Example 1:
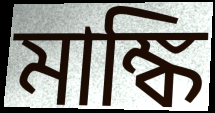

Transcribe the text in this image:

মাঙ্কি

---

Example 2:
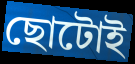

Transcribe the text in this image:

ছোটোই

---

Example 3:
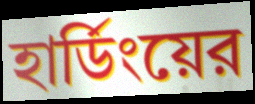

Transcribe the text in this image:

হার্ডিংয়ের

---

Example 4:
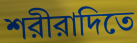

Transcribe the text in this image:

শরীরাদিতে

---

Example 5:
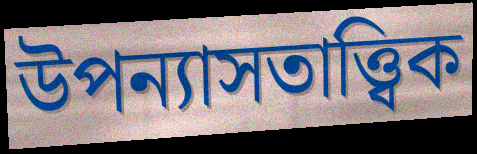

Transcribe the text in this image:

উপন্যাসতাত্ত্বিক